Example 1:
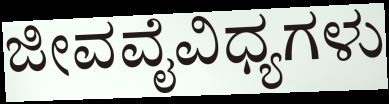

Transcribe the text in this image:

ಜೀವವೈವಿಧ್ಯಗಳು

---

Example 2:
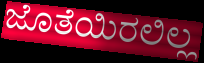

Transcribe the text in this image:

ಜೊತೆಯಿರಲಿಲ್ಲ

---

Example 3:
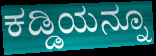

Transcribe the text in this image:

ಕಡ್ಡಿಯನ್ನೂ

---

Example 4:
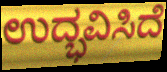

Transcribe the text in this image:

ಉದ್ಭವಿಸಿದೆ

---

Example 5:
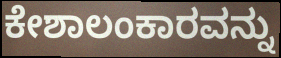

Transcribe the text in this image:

ಕೇಶಾಲಂಕಾರವನ್ನು